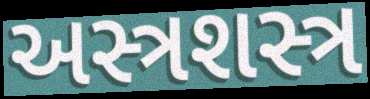
અસ્ત્રશસ્ત્ર